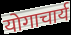
योगाचार्य